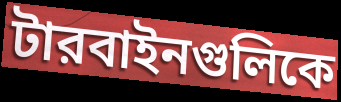
টারবাইনগুলিকে